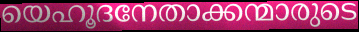
യെഹൂദനേതാക്കന്മാരുടെ